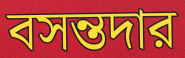
বসন্তদার